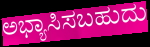
ಅಭ್ಯಾಸಿಸಬಹುದು